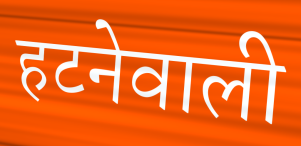
हटनेवाली